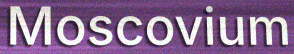
Moscovium